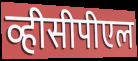
व्हीसीपीएल